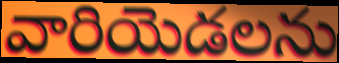
వారియెడలను